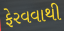
ફેરવવાથી